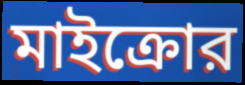
মাইক্রোর